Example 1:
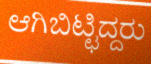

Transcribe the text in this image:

ಆಗಿಬಿಟ್ಟಿದ್ದರು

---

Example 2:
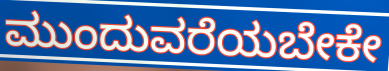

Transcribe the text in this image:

ಮುಂದುವರೆಯಬೇಕೇ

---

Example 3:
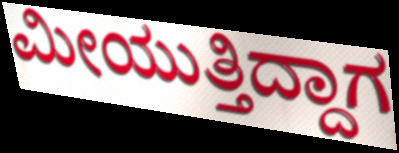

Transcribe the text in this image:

ಮೀಯುತ್ತಿದ್ದಾಗ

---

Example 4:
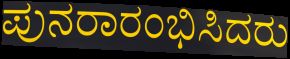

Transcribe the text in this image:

ಪುನರಾರಂಭಿಸಿದರು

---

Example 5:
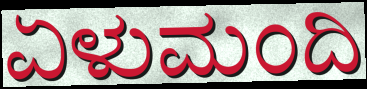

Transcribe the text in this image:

ಏಳುಮಂದಿ